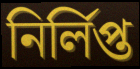
নিৰ্লিপ্ত